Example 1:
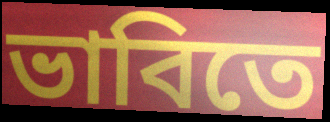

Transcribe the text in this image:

ভাবিতে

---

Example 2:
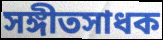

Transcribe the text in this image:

সঙ্গীতসাধক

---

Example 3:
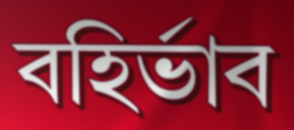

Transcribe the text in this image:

বহির্ভাব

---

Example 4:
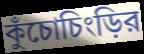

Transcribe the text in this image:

কুঁচোচিংড়ির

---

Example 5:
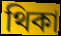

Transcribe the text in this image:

থিকা